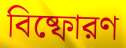
বিষ্ফোরণ